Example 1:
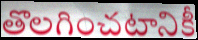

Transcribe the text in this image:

తొలగించటానికీ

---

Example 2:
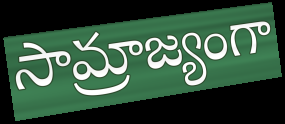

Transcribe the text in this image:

సామ్రాజ్యంగా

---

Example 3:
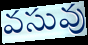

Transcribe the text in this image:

వసువు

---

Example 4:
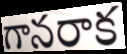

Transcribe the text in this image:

గానరాక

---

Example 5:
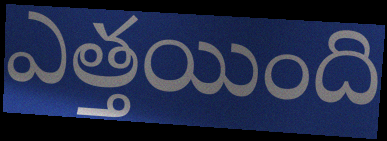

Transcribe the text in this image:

ఎత్తయింది